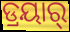
ଡ୍ରୟାର୍